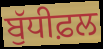
ਬੁੱਧੀਫ਼ਲ